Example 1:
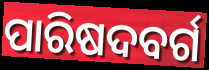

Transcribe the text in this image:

ପାରିଷଦବର୍ଗ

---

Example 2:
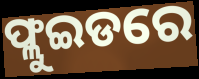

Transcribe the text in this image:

ଫ୍ଲୁଇଡରେ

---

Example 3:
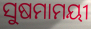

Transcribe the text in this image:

ସୁଷମାମୟୀ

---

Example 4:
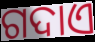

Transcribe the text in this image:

ଗଦାଏ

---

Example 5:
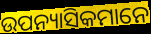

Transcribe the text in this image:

ଉପନ୍ୟାସିକମାନେ